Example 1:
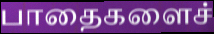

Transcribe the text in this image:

பாதைகளைச்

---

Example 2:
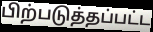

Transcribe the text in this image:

பிற்படுத்தப்பட்ட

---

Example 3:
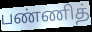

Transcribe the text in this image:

பண்ணித்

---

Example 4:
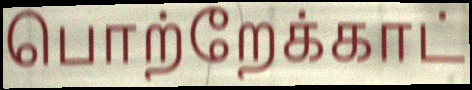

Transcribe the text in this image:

பொற்றேக்காட்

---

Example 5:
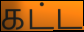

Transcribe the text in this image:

கட்ட